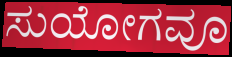
ಸುಯೋಗವೂ